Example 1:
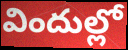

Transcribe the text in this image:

విందుల్లో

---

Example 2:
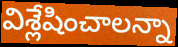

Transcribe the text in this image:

విశ్లేషించాలన్నా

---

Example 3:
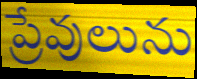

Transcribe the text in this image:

ప్రేవులును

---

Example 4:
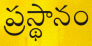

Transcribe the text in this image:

ప్రస్థానం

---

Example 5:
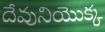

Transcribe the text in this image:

దేవునియొక్క